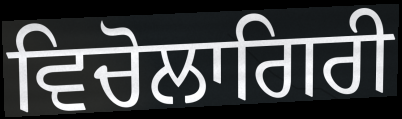
ਵਿਚੋਲਾਗਿਰੀ